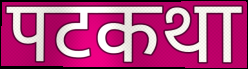
पटकथा